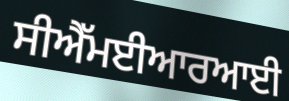
ਸੀਐੱਮਈਆਰਆਈ